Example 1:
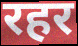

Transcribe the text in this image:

रहर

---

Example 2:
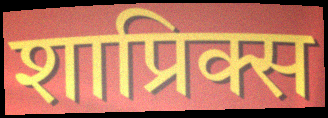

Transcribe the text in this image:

शाप्रिक्स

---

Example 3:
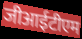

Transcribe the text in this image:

जीआईटीएम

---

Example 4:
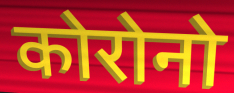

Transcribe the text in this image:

कोरोनो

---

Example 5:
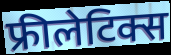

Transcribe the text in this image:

फ्रीलेटिक्स